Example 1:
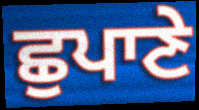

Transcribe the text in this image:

ਛੁਪਾਣੇ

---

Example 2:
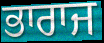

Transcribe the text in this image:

ਭਾਰਾਜ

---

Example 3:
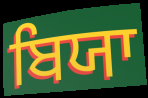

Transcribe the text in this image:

ਬਿਯਾ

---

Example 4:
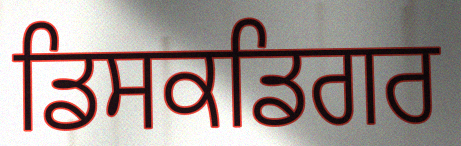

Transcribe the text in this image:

ਡਿਸਕਡਿਗਰ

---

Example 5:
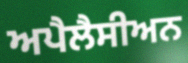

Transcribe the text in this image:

ਅਪੈਲੈਸੀਅਨ